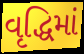
વૃદ્ધિમાં